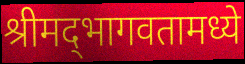
श्रीमद्‌भागवतामध्ये